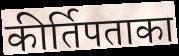
कीर्तिपताका